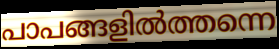
പാപങ്ങളിൽത്തന്നെ